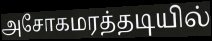
அசோகமரத்தடியில்